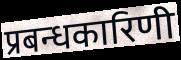
प्रबन्धकारिणी